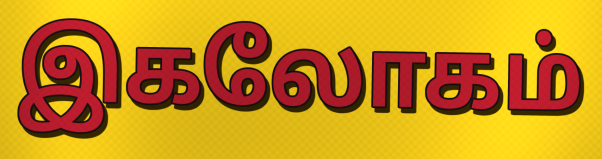
இகலோகம்